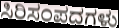
ಸಿರಿಸಂಪದಗಳು